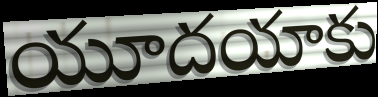
యూదయాకు